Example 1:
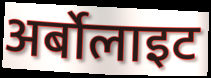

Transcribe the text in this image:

अर्बोलाइट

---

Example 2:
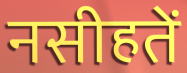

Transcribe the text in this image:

नसीहतें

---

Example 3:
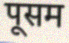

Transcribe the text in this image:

पूसम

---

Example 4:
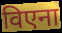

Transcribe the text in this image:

विएना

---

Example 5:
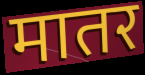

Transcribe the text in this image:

मातर